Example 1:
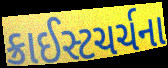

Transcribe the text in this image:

ક્રાઈસ્ટચર્ચના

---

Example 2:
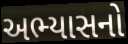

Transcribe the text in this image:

અભ્યાસનો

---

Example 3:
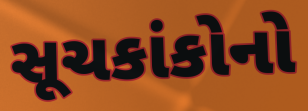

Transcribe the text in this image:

સૂચકાંકોનો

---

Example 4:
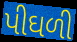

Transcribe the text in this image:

પીઘળી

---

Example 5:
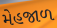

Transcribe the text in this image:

મેહજાળ